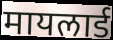
मायलार्ड